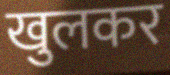
खुलकर